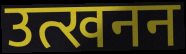
उत्खनन